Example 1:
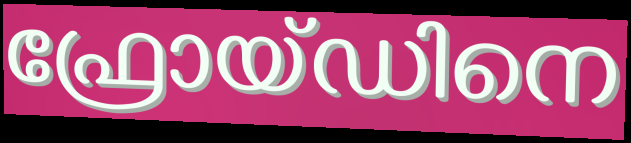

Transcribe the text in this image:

ഫ്രോയ്ഡിനെ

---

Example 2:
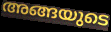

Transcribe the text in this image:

അങ്ങയുടെ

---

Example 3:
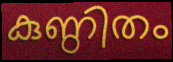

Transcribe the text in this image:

കുണ്ഠിതം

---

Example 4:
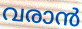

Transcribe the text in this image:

വരാൻ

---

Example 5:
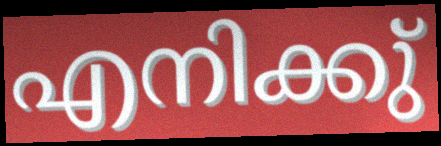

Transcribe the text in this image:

എനിക്കു്